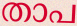
താപ